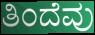
ತಿಂದೆವು